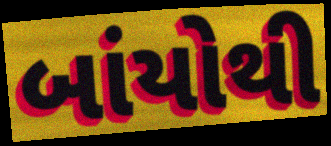
બાંયોથી